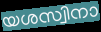
യശസ്വിനാ